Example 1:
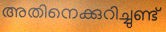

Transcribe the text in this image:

അതിനെക്കുറിച്ചുണ്ട്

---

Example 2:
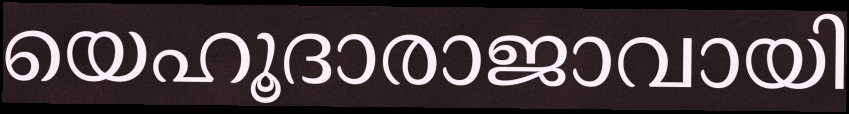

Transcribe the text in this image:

യെഹൂദാരാജാവായി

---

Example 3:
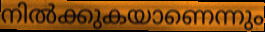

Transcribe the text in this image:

നിൽക്കുകയാണെന്നും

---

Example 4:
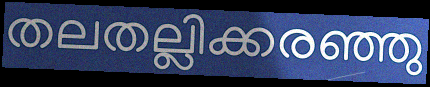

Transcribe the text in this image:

തലതല്ലിക്കരഞ്ഞു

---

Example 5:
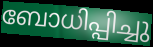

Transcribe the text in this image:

ബോധിപ്പിച്ചു